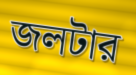
জলটার